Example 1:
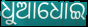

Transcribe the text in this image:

ଧୁଆଧୋଇ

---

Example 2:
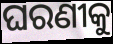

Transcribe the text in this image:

ଘରଣୀକୁ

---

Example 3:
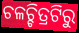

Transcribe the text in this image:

ଚଳଚ୍ଚିତ୍ରଟିରୁ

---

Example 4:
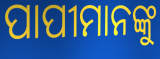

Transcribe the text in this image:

ପାପୀମାନଙ୍କୁ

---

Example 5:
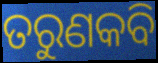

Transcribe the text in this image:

ତରୁଣକବି